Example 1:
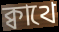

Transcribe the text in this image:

ক্বাথে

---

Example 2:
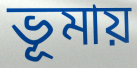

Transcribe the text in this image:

ভূমায়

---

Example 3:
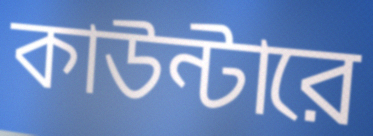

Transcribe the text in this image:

কাউন্টারে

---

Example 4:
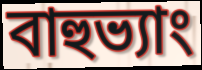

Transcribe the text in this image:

বাহুভ্যাং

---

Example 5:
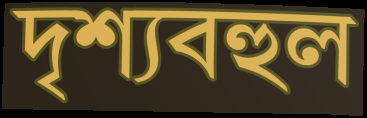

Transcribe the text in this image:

দৃশ্যবহুল